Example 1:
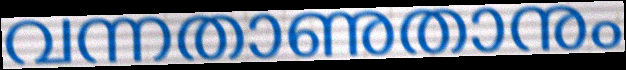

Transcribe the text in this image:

വന്നതാണുതാനും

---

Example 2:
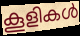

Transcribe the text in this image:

കൂളികൾ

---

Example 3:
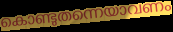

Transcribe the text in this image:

കൊണ്ടുതന്നെയാവണം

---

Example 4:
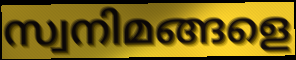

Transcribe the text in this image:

സ്വനിമങ്ങളെ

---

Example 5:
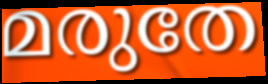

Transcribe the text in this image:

മരുതേ